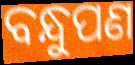
ବନ୍ଧୁପଣ